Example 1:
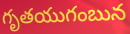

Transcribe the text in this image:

గృతయుగంబున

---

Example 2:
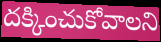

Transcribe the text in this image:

దక్కించుకోవాలని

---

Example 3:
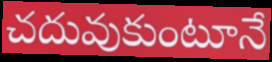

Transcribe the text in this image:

చదువుకుంటూనే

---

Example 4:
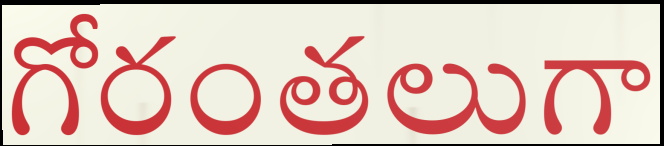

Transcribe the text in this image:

గోరంతలుగా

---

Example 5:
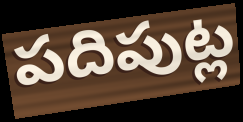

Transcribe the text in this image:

పదిపుట్ల